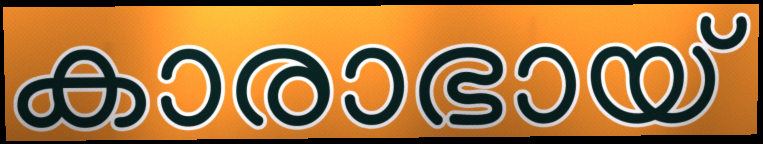
കാരാഭായ്